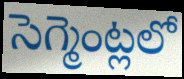
సెగ్మెంట్లలో